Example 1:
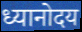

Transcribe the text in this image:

ध्यानोदय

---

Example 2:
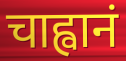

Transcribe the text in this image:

चाह्वानं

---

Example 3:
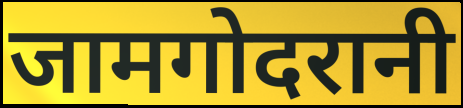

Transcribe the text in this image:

जामगोदरानी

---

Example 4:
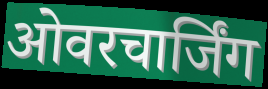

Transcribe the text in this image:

ओवरचार्जिंग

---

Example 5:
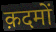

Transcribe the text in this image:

क़दमों